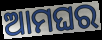
ଆମଘର